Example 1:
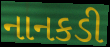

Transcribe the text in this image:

નાનકડી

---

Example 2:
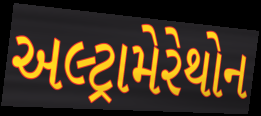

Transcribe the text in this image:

અલ્ટ્રામેરેથોન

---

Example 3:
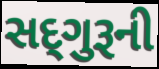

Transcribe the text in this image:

સદ્‌ગુરૂની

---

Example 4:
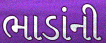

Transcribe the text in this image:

ભાડાંની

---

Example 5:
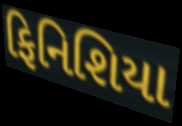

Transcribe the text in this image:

ફિનિશિયા